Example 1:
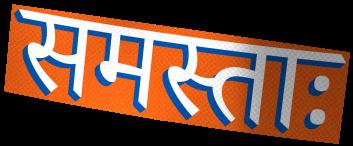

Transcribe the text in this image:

समस्ताः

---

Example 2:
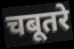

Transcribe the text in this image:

चबूतरे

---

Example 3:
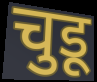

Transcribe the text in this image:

चुडू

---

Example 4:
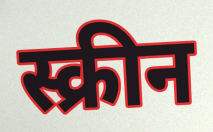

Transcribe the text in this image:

स्क्रीन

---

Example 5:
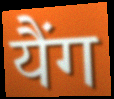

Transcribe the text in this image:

यैंग